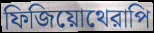
ফিজিয়োথেরাপি